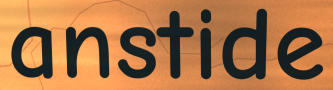
anstide